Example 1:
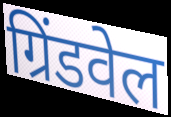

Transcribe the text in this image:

ग्रिंडवेल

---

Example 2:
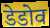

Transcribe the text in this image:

डेडोव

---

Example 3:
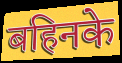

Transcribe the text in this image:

बहिनके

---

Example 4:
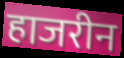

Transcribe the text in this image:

हाजरीन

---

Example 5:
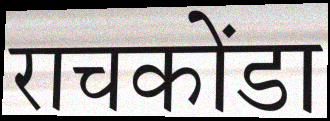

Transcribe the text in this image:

राचकोंडा